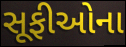
સૂફીઓના